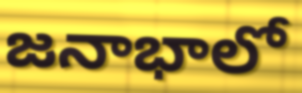
జనాభాలో